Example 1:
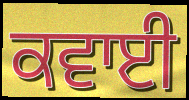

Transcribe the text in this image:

ਕਵਾਈ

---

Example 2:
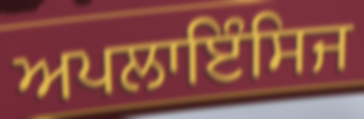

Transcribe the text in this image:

ਅਪਲਾਇੰਸਿਜ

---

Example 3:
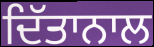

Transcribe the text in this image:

ਦਿੱਤਾਨਾਲ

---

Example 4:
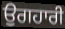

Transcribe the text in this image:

ਉਗਹਾਰੀ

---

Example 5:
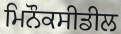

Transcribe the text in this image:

ਮਿਨੌਕਸੀਡੀਲ